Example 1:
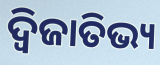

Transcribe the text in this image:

ଦ୍ବିଜାତିଭ୍ୟ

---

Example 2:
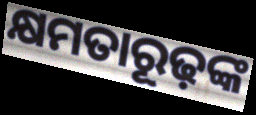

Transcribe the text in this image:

କ୍ଷମତାରୂଢ଼ଙ୍କ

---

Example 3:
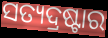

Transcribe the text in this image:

ସତ୍ୟଦ୍ରଷ୍ଟାର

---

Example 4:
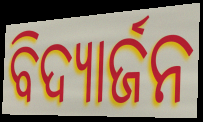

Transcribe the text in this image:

ବିଦ୍ୟାର୍ଜନ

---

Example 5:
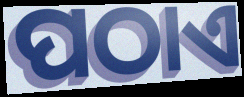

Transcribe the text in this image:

ପଠାଏ